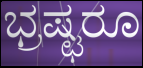
ಭ್ರಷ್ಟರೂ